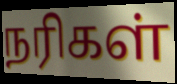
நரிகள்